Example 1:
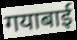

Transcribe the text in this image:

गयाबाई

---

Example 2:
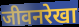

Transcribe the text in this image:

जीवनरेखा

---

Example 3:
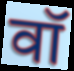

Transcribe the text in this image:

वॉ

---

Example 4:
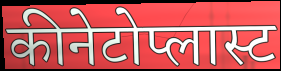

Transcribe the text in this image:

कीनेटोप्लास्ट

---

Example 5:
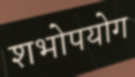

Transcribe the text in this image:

शभोपयोग